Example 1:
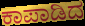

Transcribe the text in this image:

ಕಾಪಾಡಿದ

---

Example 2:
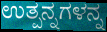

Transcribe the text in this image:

ಉತ್ಪನ್ನಗಳನ್ನ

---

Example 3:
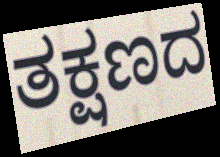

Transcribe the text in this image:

ತಕ್ಷಣದ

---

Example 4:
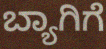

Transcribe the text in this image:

ಬ್ಯಾಗಿಗೆ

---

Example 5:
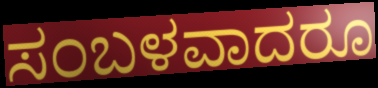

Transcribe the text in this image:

ಸಂಬಳವಾದರೂ